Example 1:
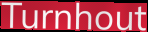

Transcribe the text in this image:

Turnhout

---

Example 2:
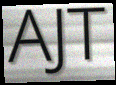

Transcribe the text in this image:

AJT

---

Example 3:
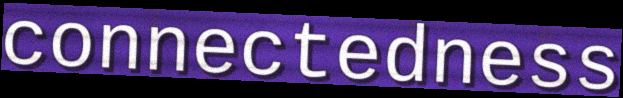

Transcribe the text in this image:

connectedness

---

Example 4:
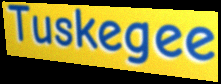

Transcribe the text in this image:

Tuskegee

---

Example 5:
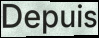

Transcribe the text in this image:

Depuis